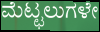
ಮೆಟ್ಟಲುಗಳೇ